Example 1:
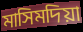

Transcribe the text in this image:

মাসিমদিয়া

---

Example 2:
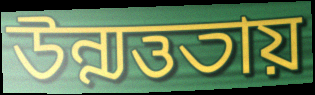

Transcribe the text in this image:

উন্মত্ততায়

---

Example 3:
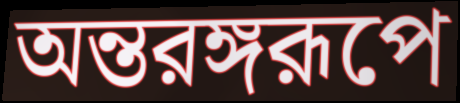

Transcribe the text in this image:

অন্তরঙ্গরূপে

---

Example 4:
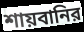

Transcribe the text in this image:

শায়বানির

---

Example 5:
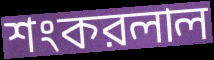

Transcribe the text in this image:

শংকরলাল